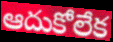
ఆదుకోలేక